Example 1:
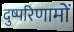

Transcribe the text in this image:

दुष्परिणामों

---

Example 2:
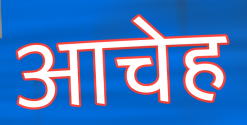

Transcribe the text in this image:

आचेह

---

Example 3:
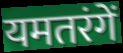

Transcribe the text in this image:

यमतरंगें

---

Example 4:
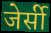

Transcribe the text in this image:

जेर्सी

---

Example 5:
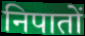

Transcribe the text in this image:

निपातों